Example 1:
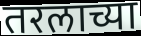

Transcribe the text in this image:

तरलाच्या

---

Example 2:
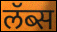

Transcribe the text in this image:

लॅब्स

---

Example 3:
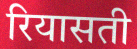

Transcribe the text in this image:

रियासती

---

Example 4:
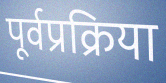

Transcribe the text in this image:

पूर्वप्रक्रिया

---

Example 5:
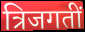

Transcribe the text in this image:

त्रिजगतीं